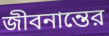
জীবনান্তের